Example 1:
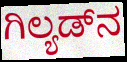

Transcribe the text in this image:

ಗಿಲ್ಯಡ್‌ನ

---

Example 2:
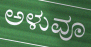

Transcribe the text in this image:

ಅಳುವೂ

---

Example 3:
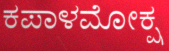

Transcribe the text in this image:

ಕಪಾಳಮೋಕ್ಷ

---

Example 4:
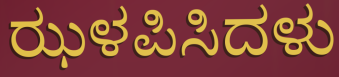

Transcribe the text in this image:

ಝಳಪಿಸಿದಳು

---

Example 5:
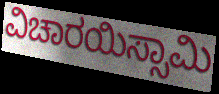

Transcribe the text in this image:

ವಿಚಾರಯಿಸ್ಸಾಮಿ